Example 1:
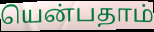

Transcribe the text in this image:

யென்பதாம்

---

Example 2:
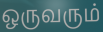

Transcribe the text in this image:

ஒருவரும்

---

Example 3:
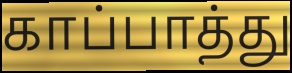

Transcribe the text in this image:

காப்பாத்து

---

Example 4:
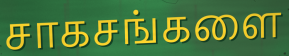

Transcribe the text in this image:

சாகசங்களை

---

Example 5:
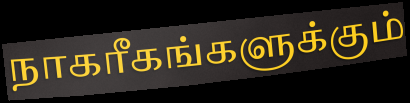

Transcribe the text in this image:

நாகரீகங்களுக்கும்